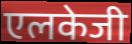
एलकेजी